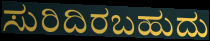
ಸುರಿದಿರಬಹುದು